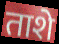
ताशे